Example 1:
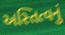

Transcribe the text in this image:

અસ્તિત્વનું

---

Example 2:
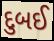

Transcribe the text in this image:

દુબઈ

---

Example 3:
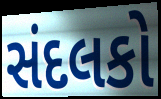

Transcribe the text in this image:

સંદલકો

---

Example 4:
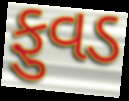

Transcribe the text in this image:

ફુવડ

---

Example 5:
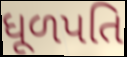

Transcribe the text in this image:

ધૂળપતિ